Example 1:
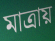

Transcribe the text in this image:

মাত্রায়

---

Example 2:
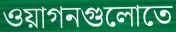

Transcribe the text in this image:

ওয়াগনগুলোতে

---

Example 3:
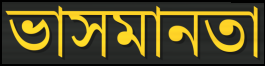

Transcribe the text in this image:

ভাসমানতা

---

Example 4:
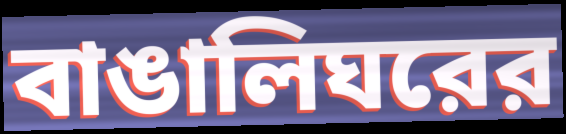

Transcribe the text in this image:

বাঙালিঘরের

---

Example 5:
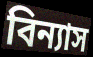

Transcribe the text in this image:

বিন্যাস